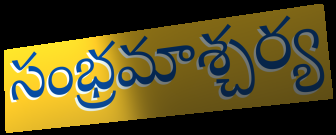
సంభ్రమాశ్చర్య